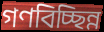
গণবিচ্ছিন্ন